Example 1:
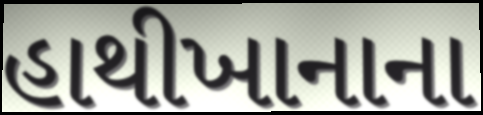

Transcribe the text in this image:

હાથીખાનાના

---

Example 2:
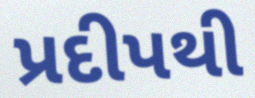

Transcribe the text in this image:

પ્રદીપથી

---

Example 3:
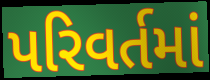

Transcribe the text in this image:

પરિવર્તમાં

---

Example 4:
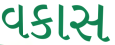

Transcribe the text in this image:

વકાસ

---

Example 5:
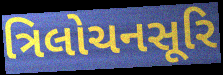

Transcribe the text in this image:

ત્રિલોચનસૂરિ